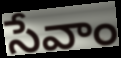
సేవాం